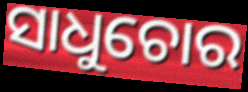
ସାଧୁଚୋର